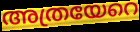
അത്രയേറെ